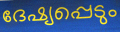
ദേഷ്യപ്പെടും